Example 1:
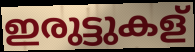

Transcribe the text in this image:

ഇരുട്ടുകള്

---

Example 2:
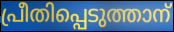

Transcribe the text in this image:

പ്രീതിപ്പെടുത്താന്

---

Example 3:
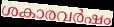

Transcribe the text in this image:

ശകാരവർഷം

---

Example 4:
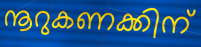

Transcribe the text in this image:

നൂറുകണക്കിന്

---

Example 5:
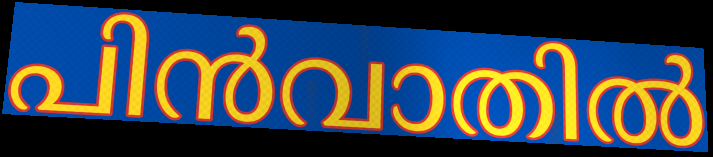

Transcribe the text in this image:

പിൻവാതിൽ